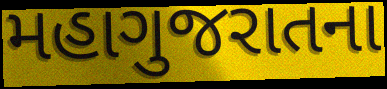
મહાગુજરાતના